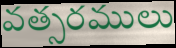
వత్సరములు